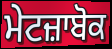
ਮੇਟਜ਼ਾਬੋਕ